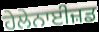
ਹੇਲੇਨਾਈਜ਼ਡ